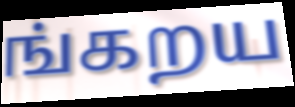
ங்கறய